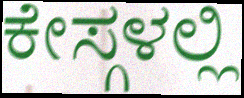
ಕೇಸ್ಗಳಲ್ಲಿ